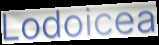
Lodoicea